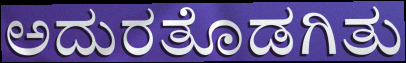
ಅದುರತೊಡಗಿತು